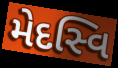
મેદસ્વિ